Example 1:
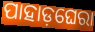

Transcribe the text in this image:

ପାହାଡ଼ଘେରା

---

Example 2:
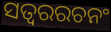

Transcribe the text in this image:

ସତ୍ୱରରଚନଂ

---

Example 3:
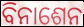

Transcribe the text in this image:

ବିନାଶେନ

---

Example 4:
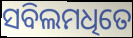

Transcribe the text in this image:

ସବିଲମଧିତେ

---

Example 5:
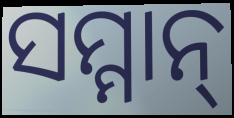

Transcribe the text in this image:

ସମ୍ମାନ୍